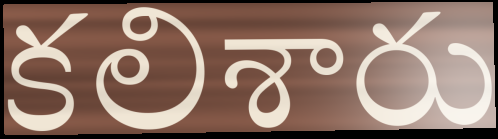
కలిశారు